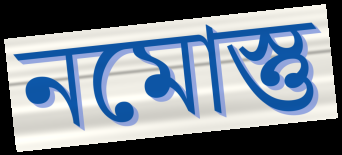
নমোস্তু